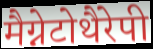
मैग्नेटोथैरेपी